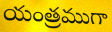
యంత్రముగా